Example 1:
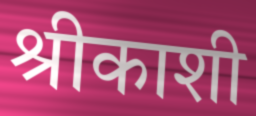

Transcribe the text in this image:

श्रीकाशी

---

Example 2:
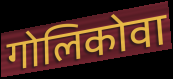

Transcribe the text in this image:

गोलिकोवा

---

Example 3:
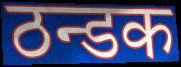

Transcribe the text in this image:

ठन्डक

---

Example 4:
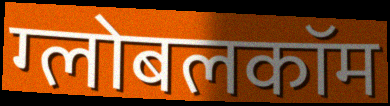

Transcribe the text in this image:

ग्लोबलकॉम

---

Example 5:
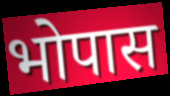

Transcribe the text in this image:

भोपास